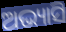
ଅଭ୍ୟାସି